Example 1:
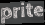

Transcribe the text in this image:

prite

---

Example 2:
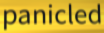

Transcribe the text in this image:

panicled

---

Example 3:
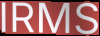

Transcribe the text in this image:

IRMS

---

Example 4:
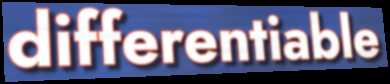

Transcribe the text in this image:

differentiable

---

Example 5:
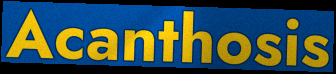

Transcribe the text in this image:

Acanthosis